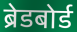
ब्रेडबोर्ड